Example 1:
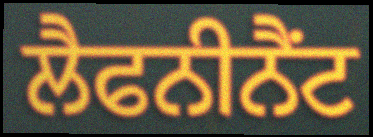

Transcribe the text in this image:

ਲੈਫਨੀਨੈਂਟ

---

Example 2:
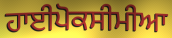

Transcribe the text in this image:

ਹਾਈਪੋਕਸੀਮੀਆ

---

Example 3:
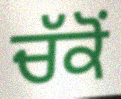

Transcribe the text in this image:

ਚੱਕੋਂ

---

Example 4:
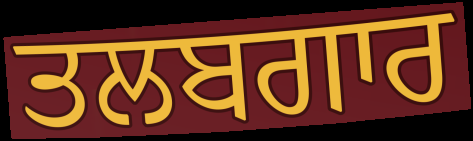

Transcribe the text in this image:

ਤਲਬਗਾਰ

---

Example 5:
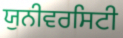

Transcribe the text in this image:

ਯੁਨੀਵਰਸਿਟੀ